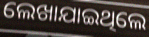
ଲେଖାଯାଇଥିଲେ